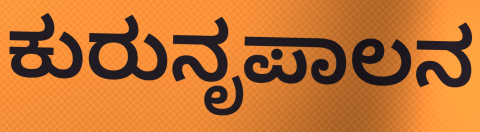
ಕುರುನೃಪಾಲನ